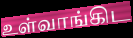
உள்வாங்கிட